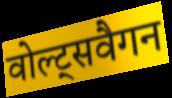
वोल्ट्सवैगन